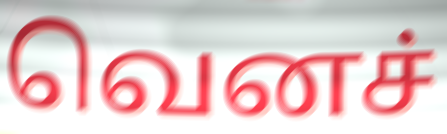
வெனச்